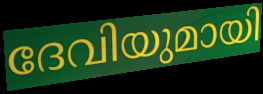
ദേവിയുമായി